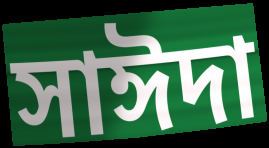
সাঈদা